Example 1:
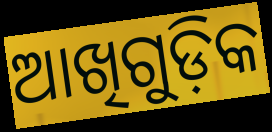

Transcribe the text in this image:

ଆଖିଗୁଡ଼ିକ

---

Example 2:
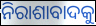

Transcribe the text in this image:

ନିରାଶାବାଦକୁ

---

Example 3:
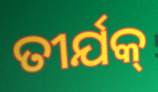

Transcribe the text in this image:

ତୀର୍ଯକ୍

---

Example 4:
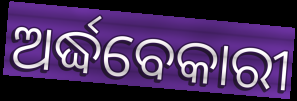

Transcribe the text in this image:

ଅର୍ଦ୍ଧବେକାରୀ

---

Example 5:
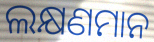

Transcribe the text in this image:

ଲକ୍ଷଣମାନ